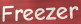
Freezer